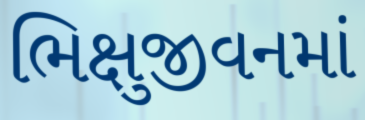
ભિક્ષુજીવનમાં